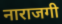
नाराजगी